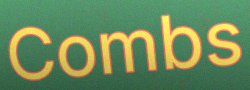
Combs